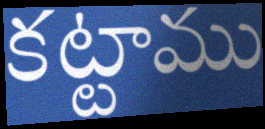
కట్టాము